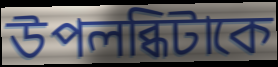
উপলব্ধিটাকে